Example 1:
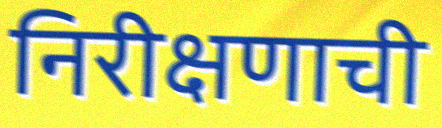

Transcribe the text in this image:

निरीक्षणाची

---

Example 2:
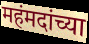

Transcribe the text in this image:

महंमदांच्या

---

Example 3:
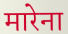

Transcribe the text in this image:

मारेना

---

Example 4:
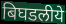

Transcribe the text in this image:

बिघडलीये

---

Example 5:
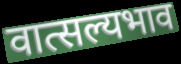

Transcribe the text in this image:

वात्सल्यभाव